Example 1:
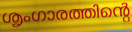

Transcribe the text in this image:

ശൃംഗാരത്തിന്റെ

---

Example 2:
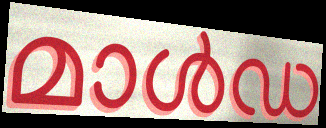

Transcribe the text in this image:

മാൾഡ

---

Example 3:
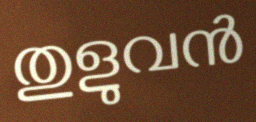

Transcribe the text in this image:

തുളുവൻ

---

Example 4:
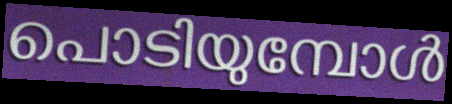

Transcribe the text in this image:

പൊടിയുമ്പോൾ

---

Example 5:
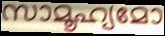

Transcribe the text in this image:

സാമൂഹ്യമോ